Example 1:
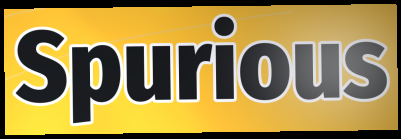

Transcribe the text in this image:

Spurious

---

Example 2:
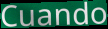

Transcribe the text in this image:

Cuando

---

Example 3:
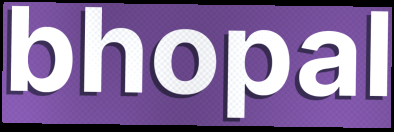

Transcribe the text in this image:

bhopal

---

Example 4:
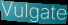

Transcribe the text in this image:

Vulgate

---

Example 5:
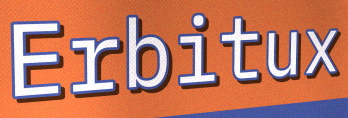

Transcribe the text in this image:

Erbitux